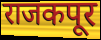
राजकपूर